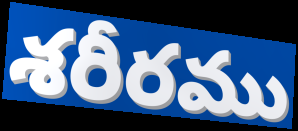
శరీరము